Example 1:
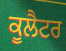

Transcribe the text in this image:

ਕੂਲੈਟਰ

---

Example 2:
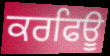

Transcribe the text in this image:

ਕਰਫਿਊ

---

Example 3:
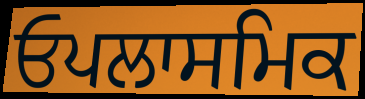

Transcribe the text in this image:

ਓਪਲਾਸਮਿਕ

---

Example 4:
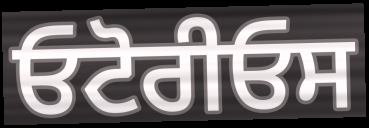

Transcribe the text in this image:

ਓਟੋਰੀਓਸ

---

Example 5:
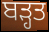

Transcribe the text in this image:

ਬੜ੍ਹਤ